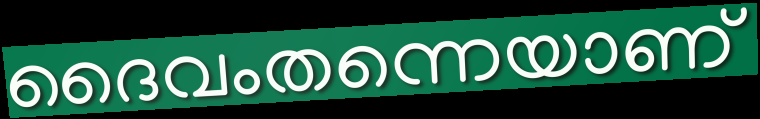
ദൈവംതന്നെയാണ്